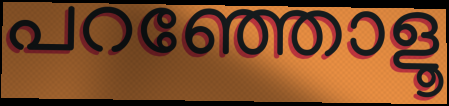
പറഞ്ഞോളൂ